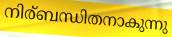
നിര്ബന്ധിതനാകുന്നു